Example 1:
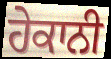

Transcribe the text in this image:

ਹੇਕਾਨੀ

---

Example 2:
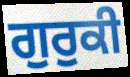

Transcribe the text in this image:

ਗੁਰੁਕੀ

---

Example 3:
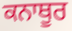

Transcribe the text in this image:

ਕਨਾਥੂਰ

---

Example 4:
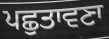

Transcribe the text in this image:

ਪਛੁਤਾਵਣਾ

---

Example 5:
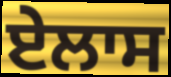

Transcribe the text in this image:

ਏਲਾਸ